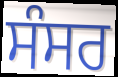
ਸੰਸਰ